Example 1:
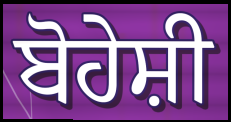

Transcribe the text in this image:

ਬੋਹੇਸ਼ੀ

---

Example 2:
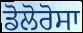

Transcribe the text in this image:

ਡੋਲੋਰੋਸਾ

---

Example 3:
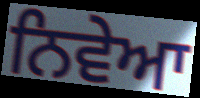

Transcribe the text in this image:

ਨਿਵੇਆ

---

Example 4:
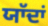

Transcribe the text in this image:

ਯਾੱਦਾਂ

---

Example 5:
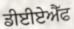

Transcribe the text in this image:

ਡੀਈਏਐੱਫ